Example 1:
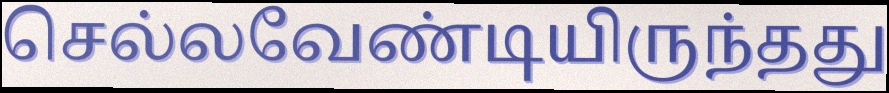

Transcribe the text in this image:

செல்லவேண்டியிருந்தது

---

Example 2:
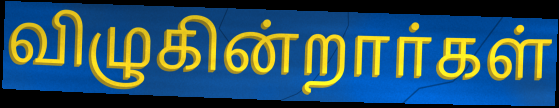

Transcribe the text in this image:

விழுகின்றார்கள்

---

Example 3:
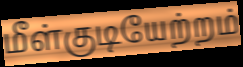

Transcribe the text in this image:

மீள்குடியேற்றம்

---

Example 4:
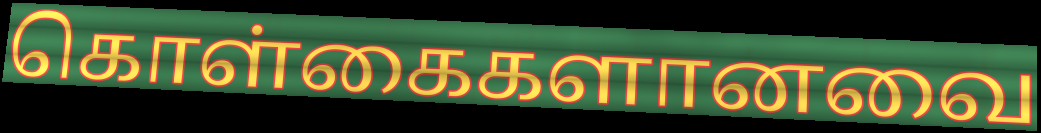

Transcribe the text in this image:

கொள்கைகளானவை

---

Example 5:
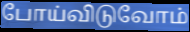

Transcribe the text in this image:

போய்விடுவோம்